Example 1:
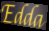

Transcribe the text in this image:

Edda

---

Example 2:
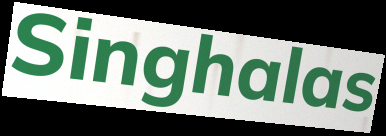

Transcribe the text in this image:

Singhalas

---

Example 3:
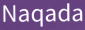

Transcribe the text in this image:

Naqada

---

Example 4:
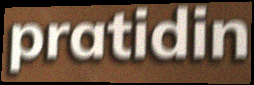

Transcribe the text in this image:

pratidin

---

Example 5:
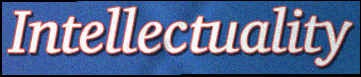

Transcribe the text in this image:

Intellectuality